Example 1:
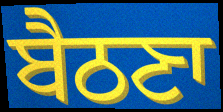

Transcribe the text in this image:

ਬੈਠਣਾ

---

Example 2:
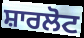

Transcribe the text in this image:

ਸ਼ਾਰਲੋਟ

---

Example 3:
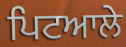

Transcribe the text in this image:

ਪਿਟਆਲੇ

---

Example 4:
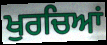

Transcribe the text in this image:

ਖੁਰਚਿਆਂ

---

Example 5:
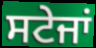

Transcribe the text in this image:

ਸਟੇਜਾਂ